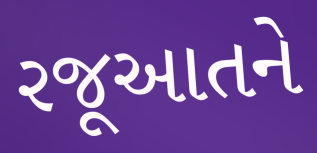
રજૂઆતને